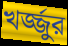
খর্জ্জুর